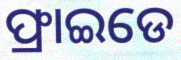
ଫ୍ରାଇଡେ